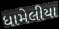
ધામેલીયા